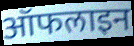
ऑफलाइन